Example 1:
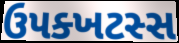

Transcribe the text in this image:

ઉપક્ખટસ્સ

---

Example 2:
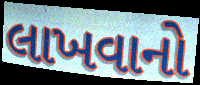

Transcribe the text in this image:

લાખવાનો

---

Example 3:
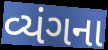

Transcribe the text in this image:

વ્યંગના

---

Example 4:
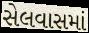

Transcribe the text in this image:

સેલવાસમાં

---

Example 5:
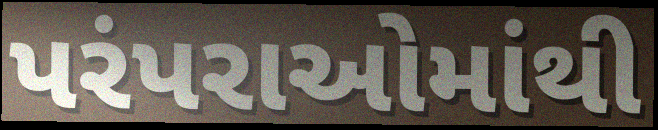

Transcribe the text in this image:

પરંપરાઓમાંથી